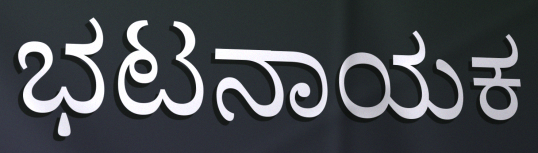
ಭಟನಾಯಕ